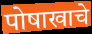
पोषाखाचे